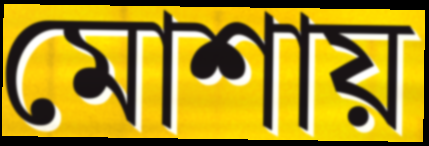
মোশায়